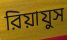
রিয়াযুস